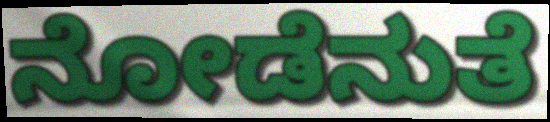
ನೋಡೆನುತೆ